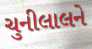
ચુનીલાલને